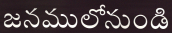
జనములోనుండి